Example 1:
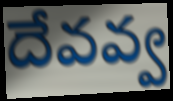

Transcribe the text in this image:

దేవవ్వ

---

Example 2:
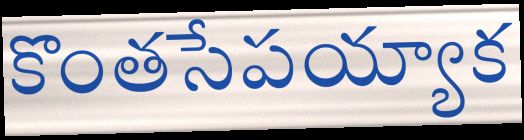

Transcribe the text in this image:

కొంతసేపయ్యాక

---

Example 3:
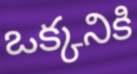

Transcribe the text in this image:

ఒక్కనికి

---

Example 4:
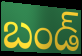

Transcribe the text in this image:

బండ్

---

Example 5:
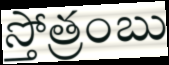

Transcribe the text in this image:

స్తోత్రంబు